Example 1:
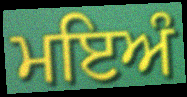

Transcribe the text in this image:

ਮਇਅੰ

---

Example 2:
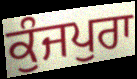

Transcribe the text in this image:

ਕੁੰਜਪੁਰਾ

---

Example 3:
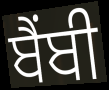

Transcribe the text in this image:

ਬੈਂਬੀ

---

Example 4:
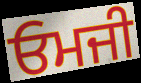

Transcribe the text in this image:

ਓਮਜੀ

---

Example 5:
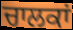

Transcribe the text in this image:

ਚਾਲਕਾਂ